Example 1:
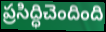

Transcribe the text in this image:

ప్రసిద్ధిచెందింది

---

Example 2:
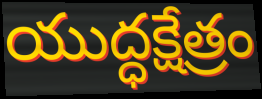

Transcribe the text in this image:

యుద్ధక్షేత్రం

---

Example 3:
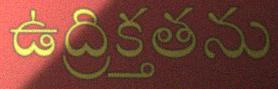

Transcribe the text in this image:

ఉద్రిక్తతను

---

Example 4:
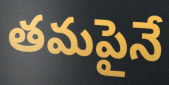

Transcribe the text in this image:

తమపైనే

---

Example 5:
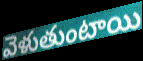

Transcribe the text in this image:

వెళుతుంటాయి